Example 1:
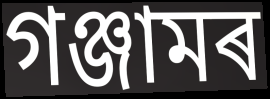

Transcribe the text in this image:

গঞ্জামৰ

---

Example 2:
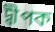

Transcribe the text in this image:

দ্বীপক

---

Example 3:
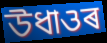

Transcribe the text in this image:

উধাওৰ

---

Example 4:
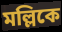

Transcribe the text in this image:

মল্লিকে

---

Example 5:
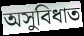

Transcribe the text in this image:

অসুবিধাত